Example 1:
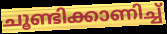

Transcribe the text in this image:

ചൂണ്ടിക്കാണിച്ച്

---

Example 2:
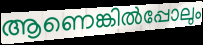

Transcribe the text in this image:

ആണെങ്കിൽപ്പോലും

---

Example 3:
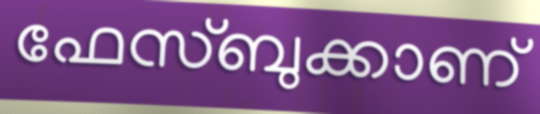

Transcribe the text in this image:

ഫേസ്ബുക്കാണ്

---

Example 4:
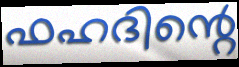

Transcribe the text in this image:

ഫഹദിന്റെ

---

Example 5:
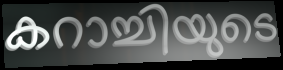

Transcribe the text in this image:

കറാച്ചിയുടെ